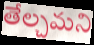
తేల్చమని